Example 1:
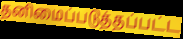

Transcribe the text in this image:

தனிமைப்படுத்தப்பட்ட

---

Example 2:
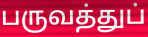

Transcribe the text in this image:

பருவத்துப்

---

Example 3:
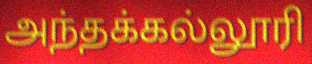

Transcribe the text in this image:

அந்தக்கல்லூரி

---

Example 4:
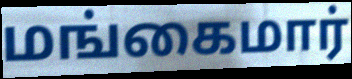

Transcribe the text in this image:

மங்கைமார்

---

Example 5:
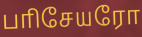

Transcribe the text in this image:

பரிசேயரோ